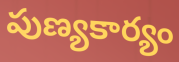
పుణ్యకార్యం